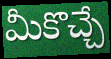
మీకొచ్చే